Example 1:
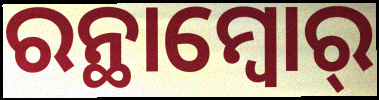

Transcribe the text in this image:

ରନ୍ଥାମ୍ବୋର୍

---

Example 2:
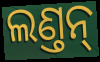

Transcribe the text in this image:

ଲଣ୍ତନ୍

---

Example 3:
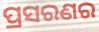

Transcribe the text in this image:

ପ୍ରସରଣର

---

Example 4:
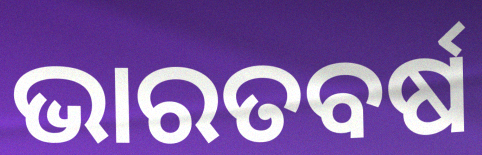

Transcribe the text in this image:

ଭାରତବର୍ଷ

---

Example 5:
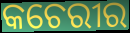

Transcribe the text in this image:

କଚେରୀର